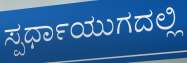
ಸ್ಪರ್ಧಾಯುಗದಲ್ಲಿ